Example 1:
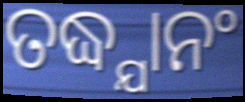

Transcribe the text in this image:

ତଦ୍ଧ୍ଯାନଂ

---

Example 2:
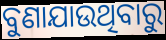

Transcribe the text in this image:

ବୁଣାଯାଉଥିବାରୁ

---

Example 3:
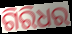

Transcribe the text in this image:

ଗିରିଧର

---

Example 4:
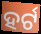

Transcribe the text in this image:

ହର୍ଟ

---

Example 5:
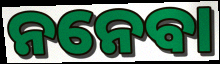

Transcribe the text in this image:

ନନେବା